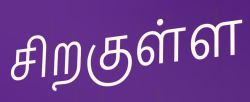
சிறகுள்ள